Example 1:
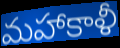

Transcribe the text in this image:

మహాకాళీ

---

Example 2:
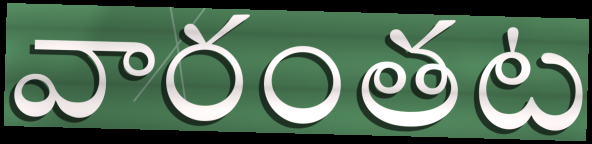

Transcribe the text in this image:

వారంతట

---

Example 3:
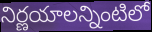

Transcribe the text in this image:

నిర్ణయాలన్నింటిలో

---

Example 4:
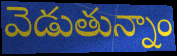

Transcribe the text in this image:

వెడుతున్నాం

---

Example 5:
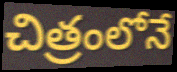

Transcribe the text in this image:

చిత్రంలోనే